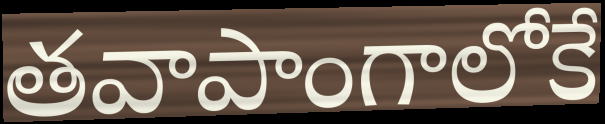
తవాపాంగాలోకే